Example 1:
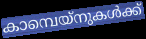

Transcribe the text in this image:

കാമ്പെയ്നുകൾക്ക്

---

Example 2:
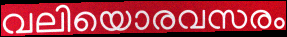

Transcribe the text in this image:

വലിയൊരവസരം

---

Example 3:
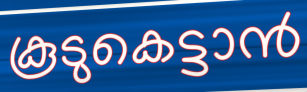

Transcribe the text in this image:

കൂടുകെട്ടാൻ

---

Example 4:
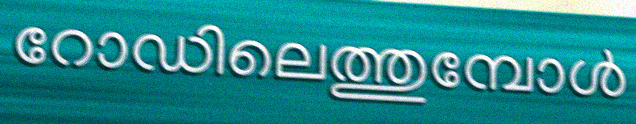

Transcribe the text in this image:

റോഡിലെത്തുമ്പോൾ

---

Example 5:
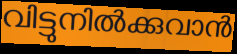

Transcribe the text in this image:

വിട്ടുനിൽക്കുവാൻ